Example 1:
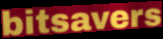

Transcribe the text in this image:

bitsavers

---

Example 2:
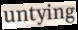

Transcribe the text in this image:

untying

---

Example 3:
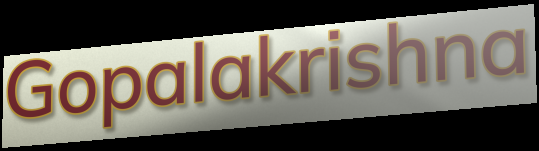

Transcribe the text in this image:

Gopalakrishna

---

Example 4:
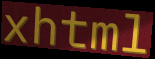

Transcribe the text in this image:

xhtml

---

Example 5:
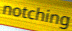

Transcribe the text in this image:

notching